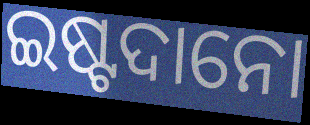
ଇଷ୍ଟଦାନୋ